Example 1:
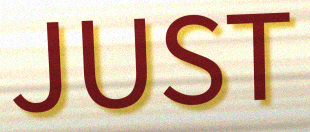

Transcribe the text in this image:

JUST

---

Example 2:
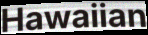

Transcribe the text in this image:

Hawaiian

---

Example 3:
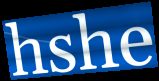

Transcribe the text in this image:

hshe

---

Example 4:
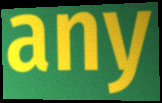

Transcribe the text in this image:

any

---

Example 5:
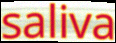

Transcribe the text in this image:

saliva